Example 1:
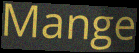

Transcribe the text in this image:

Mange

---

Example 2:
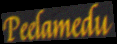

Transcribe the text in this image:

Peelamedu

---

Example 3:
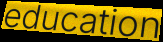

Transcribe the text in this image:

education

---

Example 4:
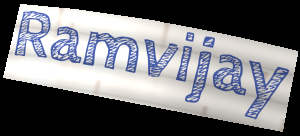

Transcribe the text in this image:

Ramvijay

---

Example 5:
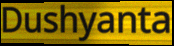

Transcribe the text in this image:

Dushyanta